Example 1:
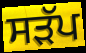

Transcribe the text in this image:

ਸੜੱਪ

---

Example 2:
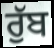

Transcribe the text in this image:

ਰੁੱਬ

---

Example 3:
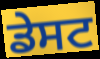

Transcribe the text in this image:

ਡੇਸਟ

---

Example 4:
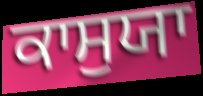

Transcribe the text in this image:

ਕਾਸੁਯਾ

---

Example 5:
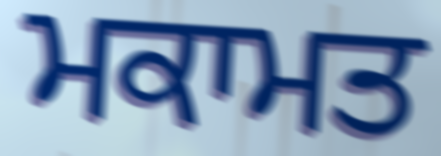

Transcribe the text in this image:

ਮਕਾਮਤ